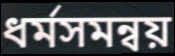
ধর্মসমন্বয়